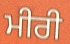
ਮੀਰੀ